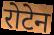
रोटेन